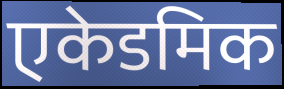
एकेडमिक